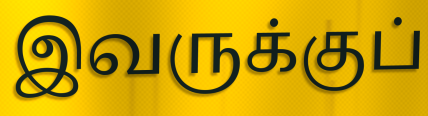
இவருக்குப்